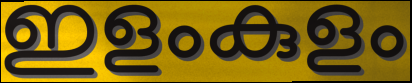
ഇളംകുളം